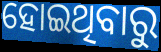
ହୋଇଥିବାରୁ